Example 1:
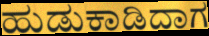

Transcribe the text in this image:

ಹುಡುಕಾಡಿದಾಗ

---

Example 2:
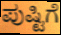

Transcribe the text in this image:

ಪುಷ್ಟಿಗೆ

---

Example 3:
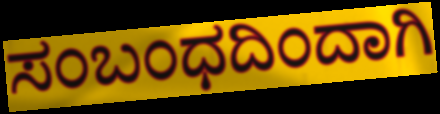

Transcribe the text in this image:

ಸಂಬಂಧದಿಂದಾಗಿ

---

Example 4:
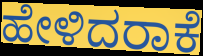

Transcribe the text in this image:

ಹೇಳಿದರಾಕೆ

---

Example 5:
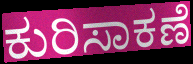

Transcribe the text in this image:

ಕುರಿಸಾಕಣೆ